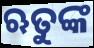
ଋତୁଙ୍କ